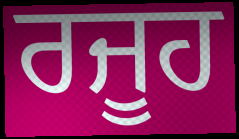
ਰਜੂਹ